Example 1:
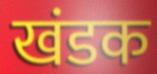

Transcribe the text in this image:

खंडक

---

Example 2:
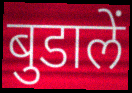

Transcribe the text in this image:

बुडालें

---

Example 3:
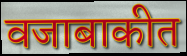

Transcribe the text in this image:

वजाबाकीत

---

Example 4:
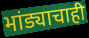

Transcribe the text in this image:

भांड्याचाही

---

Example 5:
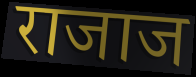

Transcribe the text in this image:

राजाज